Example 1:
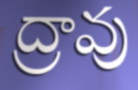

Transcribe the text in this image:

ద్రావు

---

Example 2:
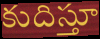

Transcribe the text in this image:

కుదిస్తూ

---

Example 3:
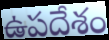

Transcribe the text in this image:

ఉపదేశం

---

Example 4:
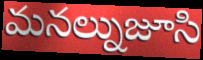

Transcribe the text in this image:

మనల్నుజూసి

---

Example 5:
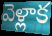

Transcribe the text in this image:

వెళ్లాక